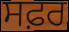
ਸਫ਼ਰ